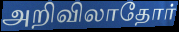
அறிவிலாதோர்